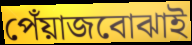
পেঁয়াজবোঝাই